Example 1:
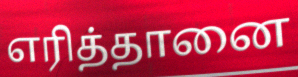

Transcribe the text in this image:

எரித்தானை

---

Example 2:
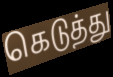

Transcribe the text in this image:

கெடுத்து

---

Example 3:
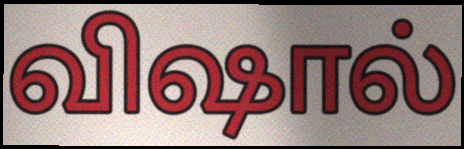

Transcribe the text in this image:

விஷால்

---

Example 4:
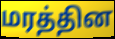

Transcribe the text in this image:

மரத்தின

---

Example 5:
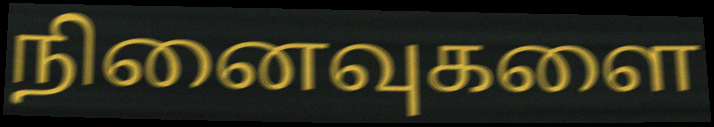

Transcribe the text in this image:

நினைவுகளை